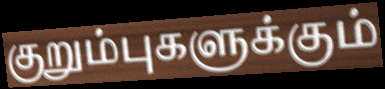
குறும்புகளுக்கும்